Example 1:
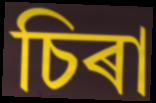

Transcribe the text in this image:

চিৰা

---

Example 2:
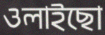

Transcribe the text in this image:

ওলাইছো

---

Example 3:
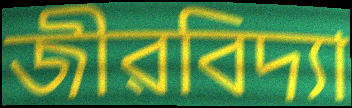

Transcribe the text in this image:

জীৱবিদ্যা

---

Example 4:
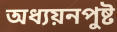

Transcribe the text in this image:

অধ্যয়নপুষ্ট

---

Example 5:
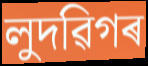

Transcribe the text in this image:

লুদৱিগৰ